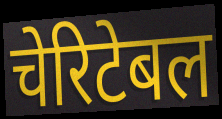
चेरिटेबल